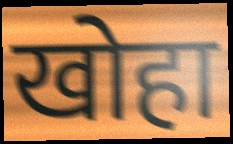
खोहा